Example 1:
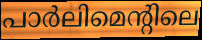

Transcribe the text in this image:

പാർലിമെന്റിലെ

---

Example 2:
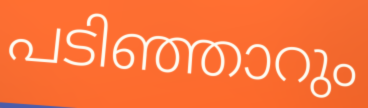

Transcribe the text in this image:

പടിഞ്ഞാറും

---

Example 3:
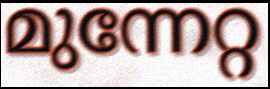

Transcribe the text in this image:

മുന്നേറ്റ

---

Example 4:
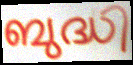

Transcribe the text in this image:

ബുദ്ധി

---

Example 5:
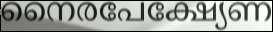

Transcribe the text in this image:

നൈരപേക്ഷ്യേണ